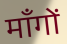
माँगों